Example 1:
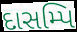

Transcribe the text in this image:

દાસમ્પિ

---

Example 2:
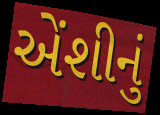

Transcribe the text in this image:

એંશીનું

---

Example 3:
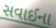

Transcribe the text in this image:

સવાઈના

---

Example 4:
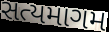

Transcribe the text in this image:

સત્યમાગમ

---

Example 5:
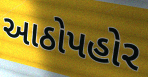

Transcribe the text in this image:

આઠોપહોર